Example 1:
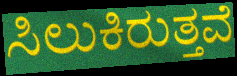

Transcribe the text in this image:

ಸಿಲುಕಿರುತ್ತವೆ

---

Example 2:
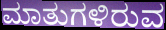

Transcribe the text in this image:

ಮಾತುಗಳಿರುವ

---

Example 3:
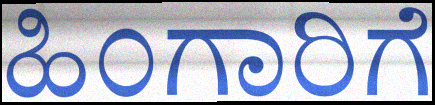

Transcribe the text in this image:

ಹಿಂಗಾರಿಗೆ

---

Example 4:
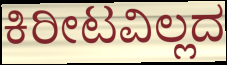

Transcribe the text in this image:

ಕಿರೀಟವಿಲ್ಲದ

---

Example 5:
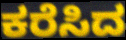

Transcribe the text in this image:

ಕರೆಸಿದ